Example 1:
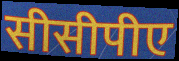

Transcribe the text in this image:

सीसीपीए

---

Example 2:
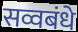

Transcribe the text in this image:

सव्वबंधे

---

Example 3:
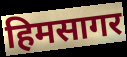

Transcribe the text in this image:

हिमसागर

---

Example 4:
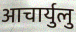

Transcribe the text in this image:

आचार्युलु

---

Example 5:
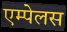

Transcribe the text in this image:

एम्पेलस